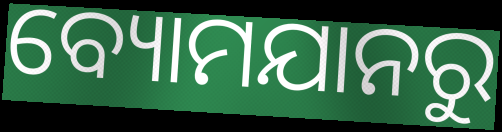
ବ୍ୟୋମଯାନରୁ